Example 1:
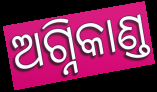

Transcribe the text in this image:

ଅଗ୍ନିକାଣ୍ଡ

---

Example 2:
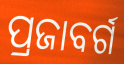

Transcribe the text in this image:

ପ୍ରଜାବର୍ଗ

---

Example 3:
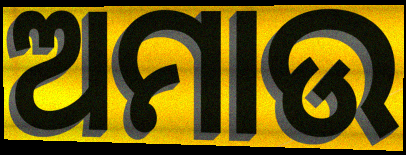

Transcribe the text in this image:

ଅମାଉ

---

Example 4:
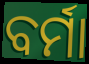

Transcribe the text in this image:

ବର୍ମା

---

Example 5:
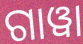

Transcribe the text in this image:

ଗାୱା